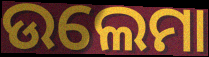
ଉଲେମା